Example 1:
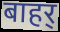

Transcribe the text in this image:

बाहर्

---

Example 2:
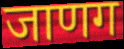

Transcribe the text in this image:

जाणग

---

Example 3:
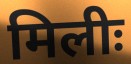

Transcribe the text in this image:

मिलीः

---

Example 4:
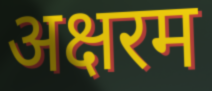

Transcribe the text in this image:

अक्षरम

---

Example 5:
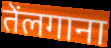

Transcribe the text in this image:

तेंलगाना